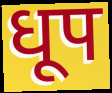
धूप